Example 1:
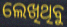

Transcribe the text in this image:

ଲେଖିଥିବୁ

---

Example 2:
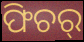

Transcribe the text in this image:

ଫିଚର୍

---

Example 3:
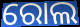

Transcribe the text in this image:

ରୋଲ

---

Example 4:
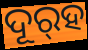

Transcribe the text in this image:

ଦୂର୍‌ହ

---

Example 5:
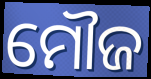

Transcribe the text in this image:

ମୌଜ